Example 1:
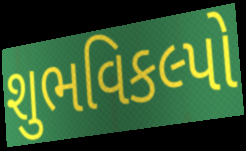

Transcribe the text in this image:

શુભવિકલ્પો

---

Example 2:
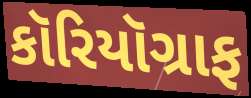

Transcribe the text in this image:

કૉરિયૉગ્રાફ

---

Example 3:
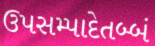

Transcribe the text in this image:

ઉપસમ્પાદેતબ્બં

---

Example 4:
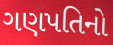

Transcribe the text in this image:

ગણપતિનો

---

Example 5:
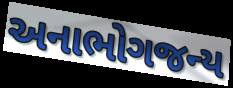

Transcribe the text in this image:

અનાભોગજન્ય